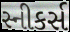
સ્નીકર્સ